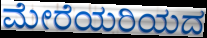
ಮೇರೆಯರಿಯದ